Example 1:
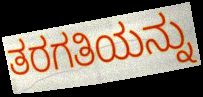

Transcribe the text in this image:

ತರಗತಿಯನ್ನು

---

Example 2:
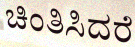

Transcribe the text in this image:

ಚಿಂತಿಸಿದರೆ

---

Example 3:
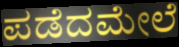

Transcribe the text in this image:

ಪಡೆದಮೇಲೆ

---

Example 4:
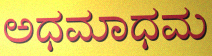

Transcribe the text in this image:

ಅಧಮಾಧಮ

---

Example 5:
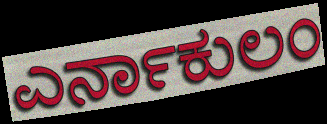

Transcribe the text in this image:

ಎರ್ನಾಕುಲಂ